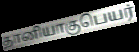
தானியாகுபெயர்